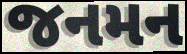
જનમન